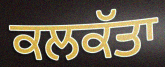
ਕਲਕੱਤਾ